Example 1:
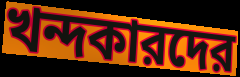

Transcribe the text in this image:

খন্দকারদের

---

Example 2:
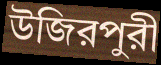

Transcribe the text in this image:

উজিরপুরী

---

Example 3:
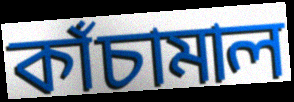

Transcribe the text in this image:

কাঁচামাল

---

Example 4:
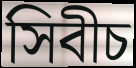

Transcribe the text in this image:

সিবীচ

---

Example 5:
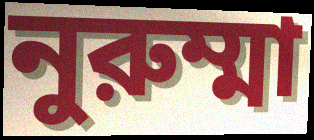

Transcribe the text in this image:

নুরুম্মা